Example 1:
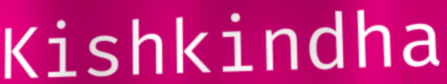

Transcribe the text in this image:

Kishkindha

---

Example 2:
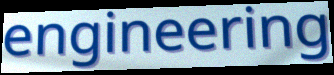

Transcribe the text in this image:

engineering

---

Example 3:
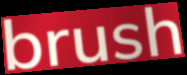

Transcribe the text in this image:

brush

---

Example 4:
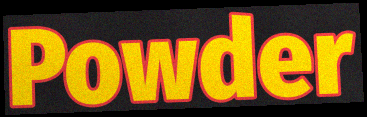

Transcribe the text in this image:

Powder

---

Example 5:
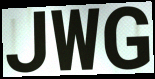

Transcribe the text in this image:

JWG